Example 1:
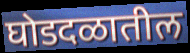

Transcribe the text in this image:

घोडदळातील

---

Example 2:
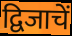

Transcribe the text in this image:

द्विजाचें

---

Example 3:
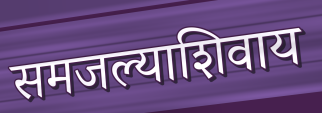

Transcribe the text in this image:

समजल्याशिवाय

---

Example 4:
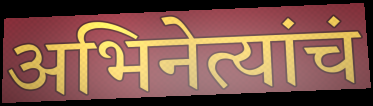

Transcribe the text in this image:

अभिनेत्यांचं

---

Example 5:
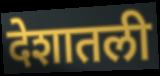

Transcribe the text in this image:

देशातली